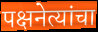
पक्षनेत्यांचा